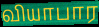
வியாபார